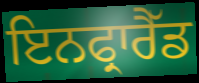
ਇਨਫ੍ਰਾਰੈੱਡ